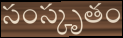
సంస్కృతం